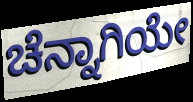
ಚೆನ್ನಾಗಿಯೇ